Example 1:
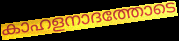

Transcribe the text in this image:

കാഹളനാദത്തോടെ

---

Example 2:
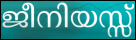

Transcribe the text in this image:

ജീനിയസ്സ്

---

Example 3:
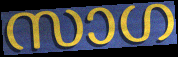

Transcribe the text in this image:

സാഗ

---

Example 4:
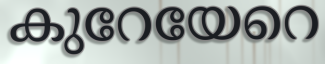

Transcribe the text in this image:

കുറേയേറെ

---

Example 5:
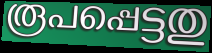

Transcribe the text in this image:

രൂപപ്പെട്ടതു